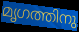
മൃഗത്തിനു